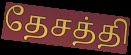
தேசத்தி